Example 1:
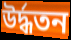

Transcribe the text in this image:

উর্দ্ধতন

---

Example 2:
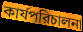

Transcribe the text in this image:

কার্যপরিচালনা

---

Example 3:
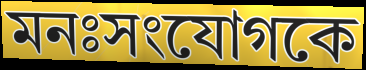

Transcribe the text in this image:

মনঃসংযোগকে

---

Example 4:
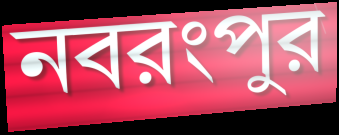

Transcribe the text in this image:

নবরংপুর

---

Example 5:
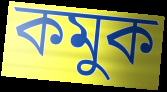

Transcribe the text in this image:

কমুক